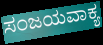
ಸಂಜಯವಾಕ್ಯ